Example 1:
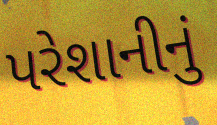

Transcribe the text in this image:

પરેશાનીનું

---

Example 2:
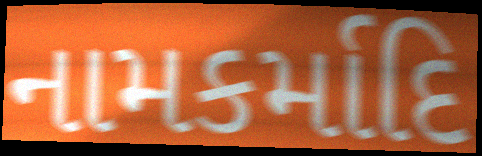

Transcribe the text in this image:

નામકર્માદિ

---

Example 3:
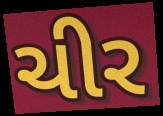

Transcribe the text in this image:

ચીર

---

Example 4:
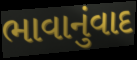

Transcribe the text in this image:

ભાવાનુંવાદ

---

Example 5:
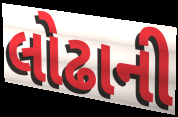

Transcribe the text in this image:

લોઢાની